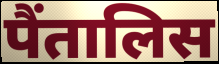
पैंतालिस